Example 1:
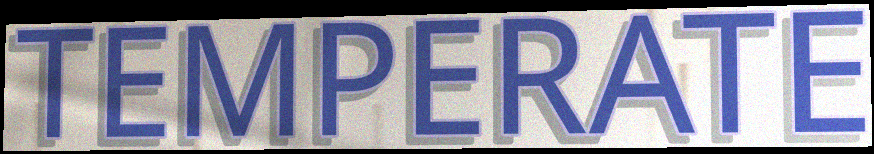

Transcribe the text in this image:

TEMPERATE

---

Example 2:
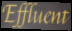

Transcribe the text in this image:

Effluent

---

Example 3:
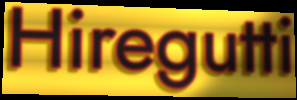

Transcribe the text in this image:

Hiregutti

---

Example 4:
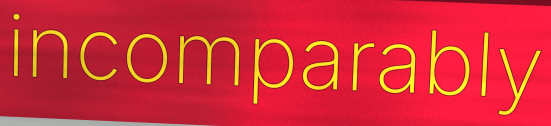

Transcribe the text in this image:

incomparably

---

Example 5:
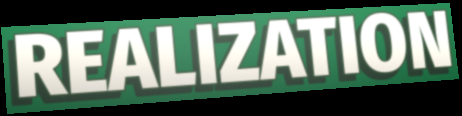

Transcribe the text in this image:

REALIZATION